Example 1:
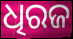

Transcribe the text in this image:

ଧିରଜ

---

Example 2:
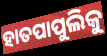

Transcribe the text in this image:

ହାତପାପୁଲିକୁ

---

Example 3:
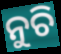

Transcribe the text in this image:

ନୁଚି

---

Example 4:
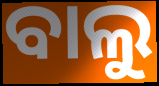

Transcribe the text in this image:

ବାଲୁ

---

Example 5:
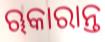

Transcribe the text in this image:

ୠକାରାନ୍ତ